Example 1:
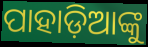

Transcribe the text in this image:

ପାହାଡ଼ିଆଙ୍କୁ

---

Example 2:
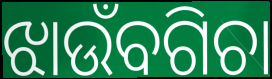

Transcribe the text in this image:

ଝାଉଁବଗିଚା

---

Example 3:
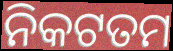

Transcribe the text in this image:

ନିକଟତମ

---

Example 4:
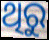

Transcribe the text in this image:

ଥିରୁ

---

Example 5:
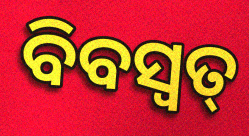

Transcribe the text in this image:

ବିବସ୍ଵତ୍